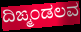
ದಿಙ್ಮಂಡಲವ